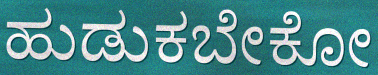
ಹುಡುಕಬೇಕೋ